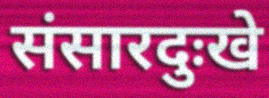
संसारदुःखे